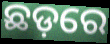
ଛଡ଼ରେ